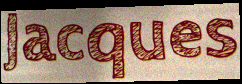
Jacques